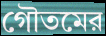
গৌতমের